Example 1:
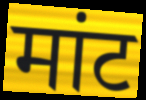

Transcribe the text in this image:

मांट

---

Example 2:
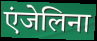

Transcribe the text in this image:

एंजेलिना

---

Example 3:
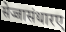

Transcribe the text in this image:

सेज्जासंथारए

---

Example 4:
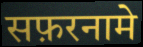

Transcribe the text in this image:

सफ़रनामे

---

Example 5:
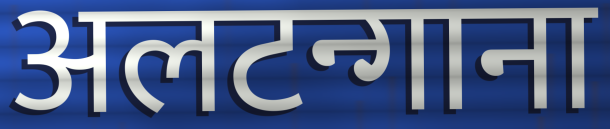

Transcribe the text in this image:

अलटन्गाना